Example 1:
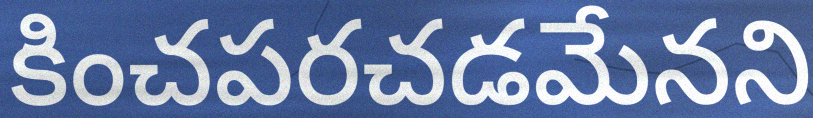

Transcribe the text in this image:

కించపరచడమేనని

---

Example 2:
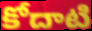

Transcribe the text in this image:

కోదాటి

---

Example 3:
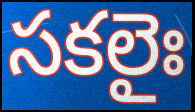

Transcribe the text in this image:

సకలైః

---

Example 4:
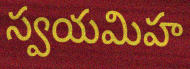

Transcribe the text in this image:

స్వయమిహ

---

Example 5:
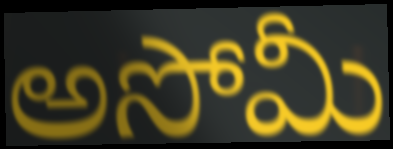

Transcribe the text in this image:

అసోమీ